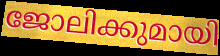
ജോലിക്കുമായി